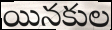
యినకుల